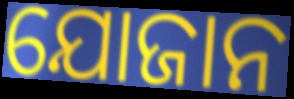
ଯୋଜାନ